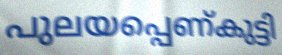
പുലയപ്പെണ്കുട്ടി